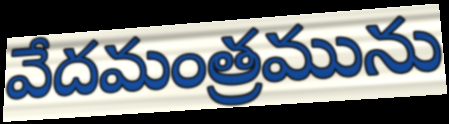
వేదమంత్రమును